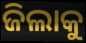
ଜିଲାକୁ